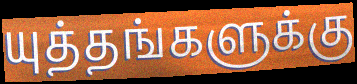
யுத்தங்களுக்கு